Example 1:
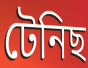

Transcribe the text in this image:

টেনিছ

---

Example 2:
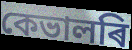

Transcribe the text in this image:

কেভালৰি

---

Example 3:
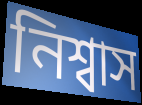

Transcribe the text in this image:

নিশ্বাস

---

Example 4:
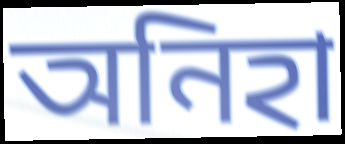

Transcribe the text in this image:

অনিহা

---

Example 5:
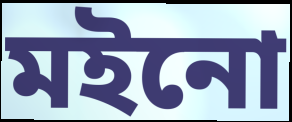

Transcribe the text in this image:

মইনো